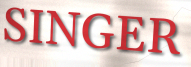
SINGER